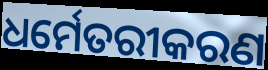
ଧର୍ମେତରୀକରଣ